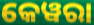
କେୱରା